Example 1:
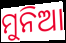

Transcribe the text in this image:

ମୁନିଆ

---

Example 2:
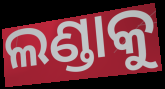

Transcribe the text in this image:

ଲଣ୍ଡାକୁ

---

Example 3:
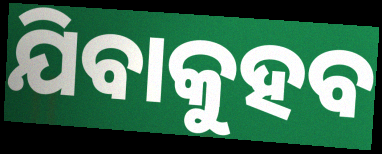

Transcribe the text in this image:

ଯିବାକୁହବ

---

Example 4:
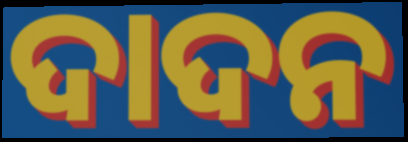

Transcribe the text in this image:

ଦାଦନ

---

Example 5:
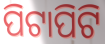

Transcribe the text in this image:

ପିଟାପିଟି